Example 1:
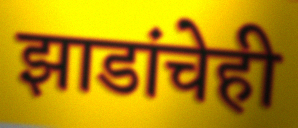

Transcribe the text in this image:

झाडांचेही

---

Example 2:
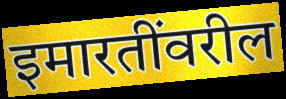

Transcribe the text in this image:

इमारतींवरील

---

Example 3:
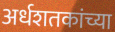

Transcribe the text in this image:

अर्धशतकांच्या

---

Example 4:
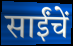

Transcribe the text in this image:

साईंचें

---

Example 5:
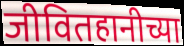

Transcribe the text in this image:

जीवितहानीच्या